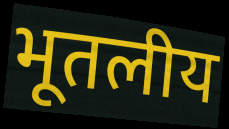
भूतलीय